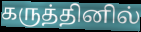
கருத்தினில்